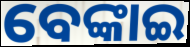
ବେଙ୍କାଇ